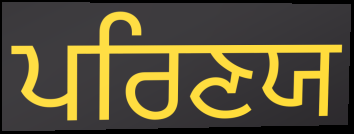
ਪਰਿਣਯ